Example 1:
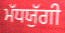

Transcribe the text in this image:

ਮੱਧਯੁੱਗੀ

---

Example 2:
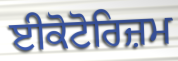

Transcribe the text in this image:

ਈਕੋਟੋਰਿਜ਼ਮ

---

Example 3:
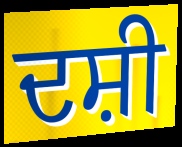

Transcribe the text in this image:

ਦਸ਼ੀ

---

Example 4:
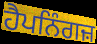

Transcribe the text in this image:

ਹੈਪਨਿੰਗਜ਼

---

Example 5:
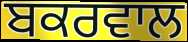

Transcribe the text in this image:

ਬਕਰਵਾਲ